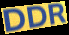
DDR